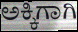
ಅಕ್ಕಿಗಾಗಿ